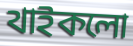
থাইকলো